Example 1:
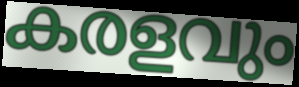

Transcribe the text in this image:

കരളവും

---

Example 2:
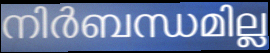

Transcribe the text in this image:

നിർബന്ധമില്ല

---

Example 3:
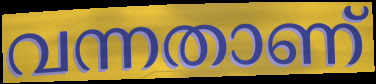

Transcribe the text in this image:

വന്നതാണ്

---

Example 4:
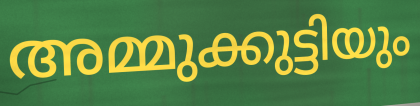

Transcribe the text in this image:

അമ്മുക്കുട്ടിയും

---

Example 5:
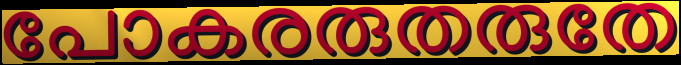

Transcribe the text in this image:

പോകരരുതരുതേ